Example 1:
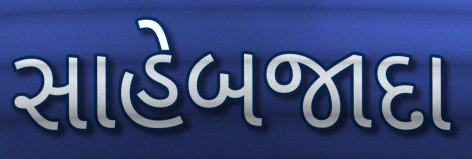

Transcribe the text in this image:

સાહેબજાદા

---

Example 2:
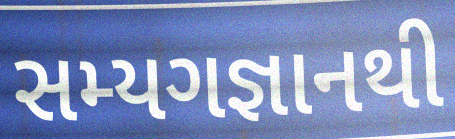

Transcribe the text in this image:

સમ્યગજ્ઞાનથી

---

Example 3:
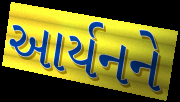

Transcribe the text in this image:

આર્યનને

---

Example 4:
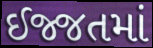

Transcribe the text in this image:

ઈજ્જતમાં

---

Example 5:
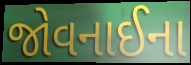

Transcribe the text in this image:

જોવનાઈના